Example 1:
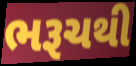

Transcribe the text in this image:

ભરૂચથી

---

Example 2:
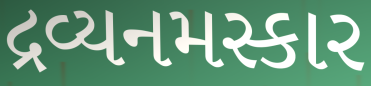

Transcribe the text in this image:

દ્રવ્યનમસ્કાર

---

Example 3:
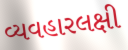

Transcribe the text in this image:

વ્યવહારલક્ષી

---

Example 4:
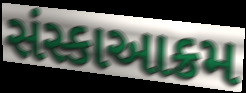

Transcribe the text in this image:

સંસ્કાઆક્રમ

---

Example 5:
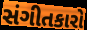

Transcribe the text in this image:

સંગીતકારો